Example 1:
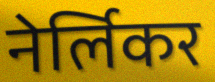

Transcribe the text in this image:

नेर्लिकर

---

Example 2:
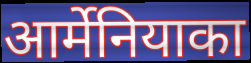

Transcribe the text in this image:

आर्मेनियाका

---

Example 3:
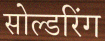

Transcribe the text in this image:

सोल्डरिंग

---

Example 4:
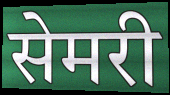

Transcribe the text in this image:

सेमरी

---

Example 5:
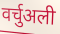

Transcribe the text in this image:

वर्चुअली